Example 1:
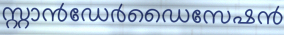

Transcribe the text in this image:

സ്റ്റാൻഡേർഡൈസേഷൻ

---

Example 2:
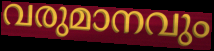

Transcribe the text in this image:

വരുമാനവും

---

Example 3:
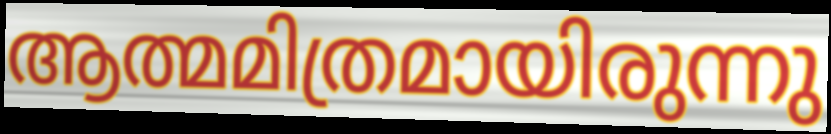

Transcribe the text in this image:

ആത്മമിത്രമായിരുന്നു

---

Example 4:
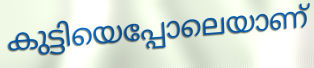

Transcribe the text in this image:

കുട്ടിയെപ്പോലെയാണ്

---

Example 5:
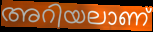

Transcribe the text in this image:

അറിയലാണ്